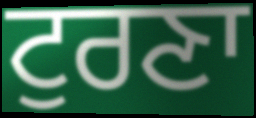
ਟੁਰਣਾ